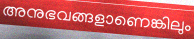
അനുഭവങ്ങളാണെങ്കിലും